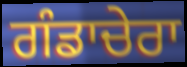
ਗੰਡਾਚੇਰਾ